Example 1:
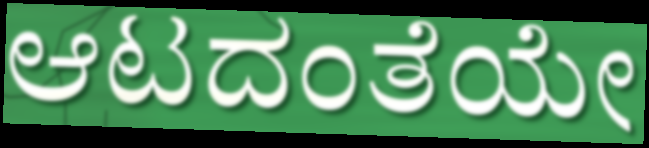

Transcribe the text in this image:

ಆಟದಂತೆಯೇ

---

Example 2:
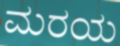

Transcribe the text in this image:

ಮರಯ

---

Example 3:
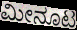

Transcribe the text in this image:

ಮೀನೂಟ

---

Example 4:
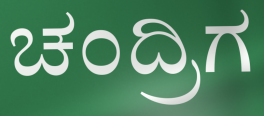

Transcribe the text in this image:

ಚಂದ್ರಿಗ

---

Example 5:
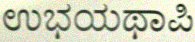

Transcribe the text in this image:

ಉಭಯಥಾಪಿ